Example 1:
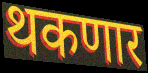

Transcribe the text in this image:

थकणार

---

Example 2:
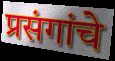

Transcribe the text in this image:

प्रसंगांचे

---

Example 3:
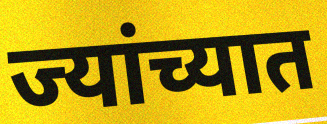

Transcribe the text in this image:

ज्यांच्यात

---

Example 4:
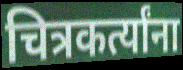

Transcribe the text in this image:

चित्रकर्त्यांना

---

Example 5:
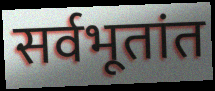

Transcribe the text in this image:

सर्वभूतांत